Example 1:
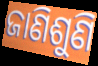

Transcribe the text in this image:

ଜାଣିଶୁଣି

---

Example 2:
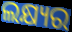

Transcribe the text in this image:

ଲକ୍ଷ୍ୟର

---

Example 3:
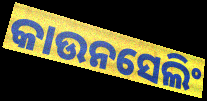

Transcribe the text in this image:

କାଉନସେଲିଂ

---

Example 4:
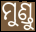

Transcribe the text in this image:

ମୁଣ୍ଡୁ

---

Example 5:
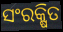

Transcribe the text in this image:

ସଂରକ୍ଷିତ